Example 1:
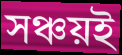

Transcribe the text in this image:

সঞ্চয়ই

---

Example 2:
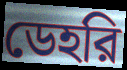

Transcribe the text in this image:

ডেহরি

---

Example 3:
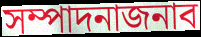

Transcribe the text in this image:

সম্পাদনাজনাব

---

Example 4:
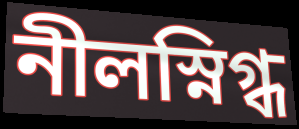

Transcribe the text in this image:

নীলস্নিগ্ধ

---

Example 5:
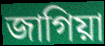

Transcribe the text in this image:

জাগিয়া